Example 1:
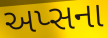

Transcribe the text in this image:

અપ્સના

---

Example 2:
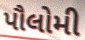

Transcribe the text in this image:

પૌલોમી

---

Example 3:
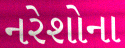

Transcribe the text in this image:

નરેશોના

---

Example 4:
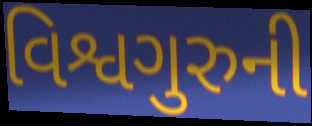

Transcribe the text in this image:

વિશ્વગુરુની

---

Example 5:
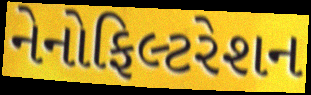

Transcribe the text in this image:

નેનોફિલ્ટરેશન